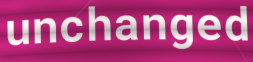
unchanged